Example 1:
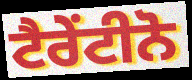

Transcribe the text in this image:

ਟੈਰੇਂਟੀਨੋ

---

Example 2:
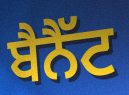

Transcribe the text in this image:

ਬੈਨੈੱਟ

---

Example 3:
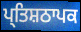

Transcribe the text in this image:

ਪ੍ਤਿਸ਼ਠਾਪਕ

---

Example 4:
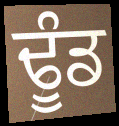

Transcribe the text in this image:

ਢੂੰਡ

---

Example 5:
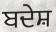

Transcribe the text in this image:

ਬਦੇਸ਼